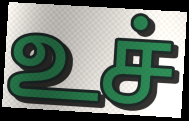
உச்